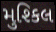
મુશ્કિલ